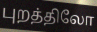
புறத்திலோ